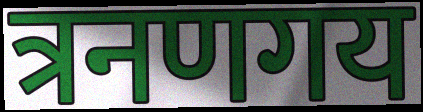
त्रनणगय